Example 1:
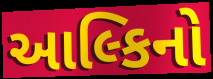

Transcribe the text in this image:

આલ્કિનો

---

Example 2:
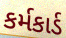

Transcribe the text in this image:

કર્મકાર્ડ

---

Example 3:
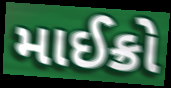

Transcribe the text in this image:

માઈક્રો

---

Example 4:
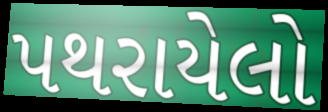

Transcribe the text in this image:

પથરાયેલો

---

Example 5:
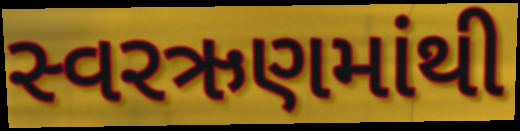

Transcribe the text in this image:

સ્વરઋણમાંથી